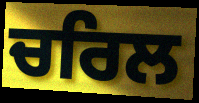
ਚਰਿਲ